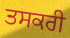
ਤਸਕਰੀ